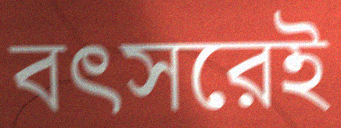
বৎসরেই